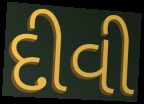
દીવી